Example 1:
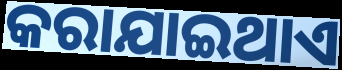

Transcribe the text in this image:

କରାଯାଇଥାଏ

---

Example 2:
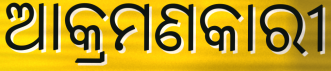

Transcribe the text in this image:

ଆକ୍ରମଣକାରୀ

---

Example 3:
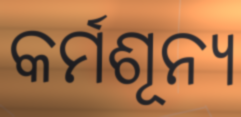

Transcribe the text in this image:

କର୍ମଶୂନ୍ୟ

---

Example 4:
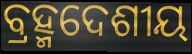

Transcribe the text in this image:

ବ୍ରହ୍ମଦେଶୀୟ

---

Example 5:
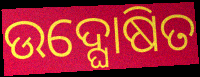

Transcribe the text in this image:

ଉଦ୍ଘୋଷିତ